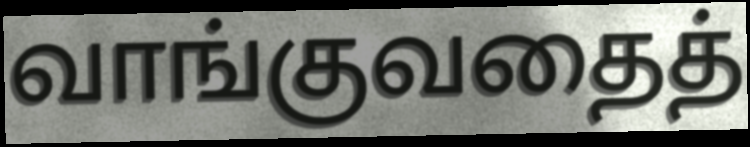
வாங்குவதைத்